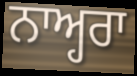
ਨਾਅ੍ਹਰਾ